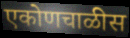
एकोणचाळीस